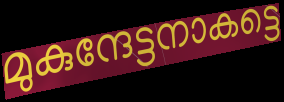
മുകുന്ദേട്ടനാകട്ടെ